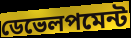
ডেভেলপমেন্ট